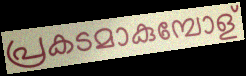
പ്രകടമാകുമ്പോള്